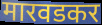
मारवडकर